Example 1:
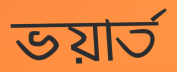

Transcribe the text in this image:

ভয়ার্ত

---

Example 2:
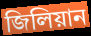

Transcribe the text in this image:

জিলিয়ান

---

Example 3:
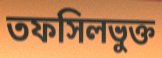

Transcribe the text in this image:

তফসিলভুক্ত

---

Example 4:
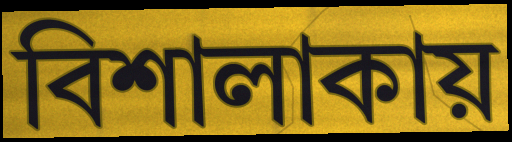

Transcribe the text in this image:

বিশালাকায়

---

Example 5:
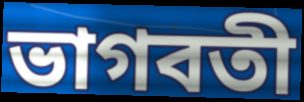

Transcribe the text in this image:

ভাগবতী